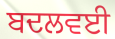
ਬਦਲਵਈ